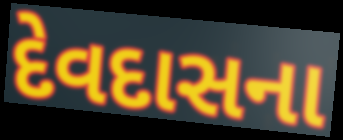
દેવદાસના